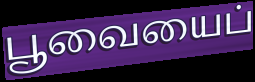
பூவையைப்